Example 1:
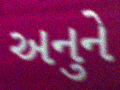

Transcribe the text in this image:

અનુને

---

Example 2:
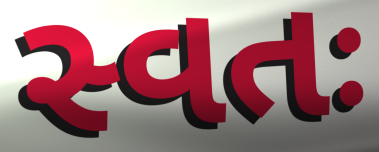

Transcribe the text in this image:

સ્વતઃ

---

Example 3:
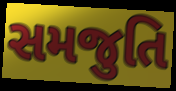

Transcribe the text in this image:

સમજુતિ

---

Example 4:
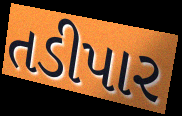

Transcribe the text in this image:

તડીપાર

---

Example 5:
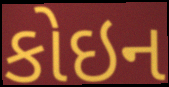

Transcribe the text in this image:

કોઇન